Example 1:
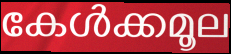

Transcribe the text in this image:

കേൾക്കമൂല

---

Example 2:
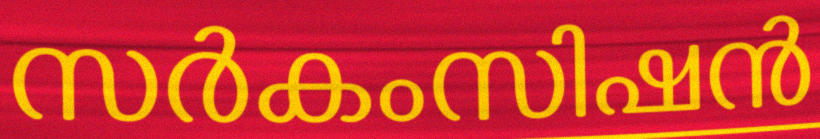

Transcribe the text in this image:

സർകംസിഷൻ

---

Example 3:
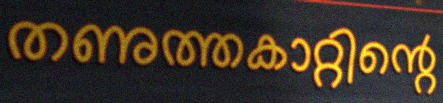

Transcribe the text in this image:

തണുത്തകാറ്റിന്റെ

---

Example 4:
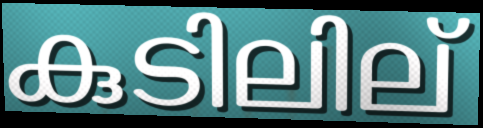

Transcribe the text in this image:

കുടിലില്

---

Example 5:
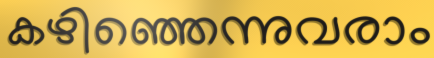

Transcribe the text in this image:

കഴിഞ്ഞെന്നുവരാം